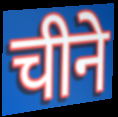
चीने